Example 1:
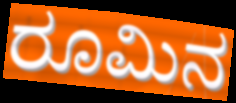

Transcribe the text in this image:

ರೂಮಿನ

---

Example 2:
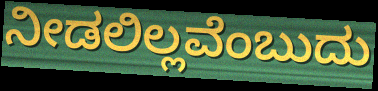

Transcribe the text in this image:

ನೀಡಲಿಲ್ಲವೆಂಬುದು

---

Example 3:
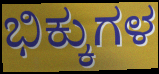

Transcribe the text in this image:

ಭಿಕ್ಕುಗಳ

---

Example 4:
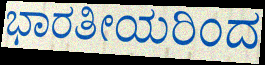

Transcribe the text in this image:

ಭಾರತೀಯರಿಂದ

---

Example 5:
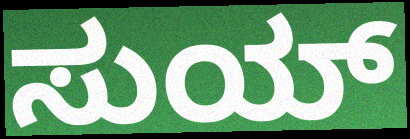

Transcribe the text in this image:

ಸುಯ್